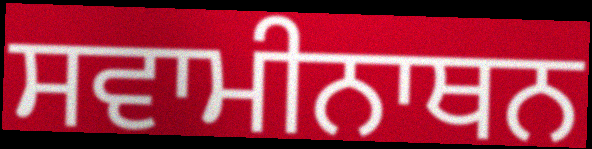
ਸਵਾਮੀਨਾਥਨ